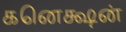
கனெக்ஷன்